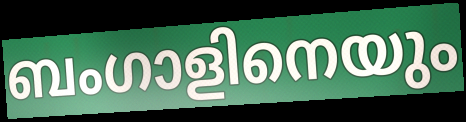
ബംഗാളിനെയും